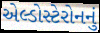
એલ્ડોસ્ટેરોનનું